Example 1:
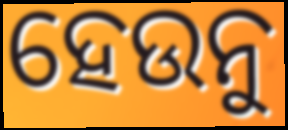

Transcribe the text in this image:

ହେଉନୁ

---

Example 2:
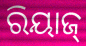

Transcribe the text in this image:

ରିୟାଜ୍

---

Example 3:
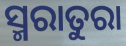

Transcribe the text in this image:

ସ୍ମରାତୁରା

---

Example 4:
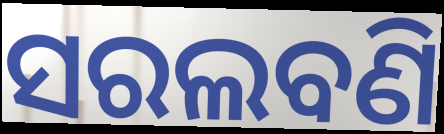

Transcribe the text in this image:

ସରଲବଣି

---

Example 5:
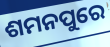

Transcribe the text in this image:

ଶମନପୁରେ